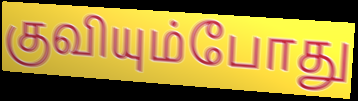
குவியும்போது